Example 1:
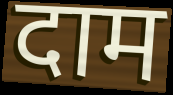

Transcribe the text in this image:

दाम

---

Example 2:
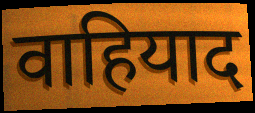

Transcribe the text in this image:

वाहियाद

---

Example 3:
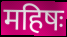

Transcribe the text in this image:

महिषः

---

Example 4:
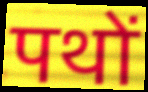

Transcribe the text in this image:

पथों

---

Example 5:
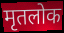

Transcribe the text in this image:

मृतलोक